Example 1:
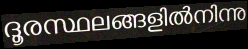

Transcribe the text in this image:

ദൂരസ്ഥലങ്ങളിൽനിന്നു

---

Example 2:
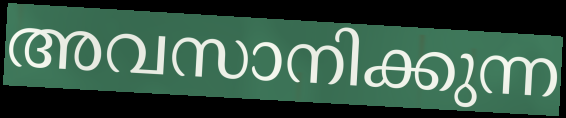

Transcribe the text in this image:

അവസാനിക്കുന്ന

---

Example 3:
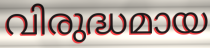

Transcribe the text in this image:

വിരുദ്ധമായ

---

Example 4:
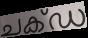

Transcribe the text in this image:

ചക്ഡ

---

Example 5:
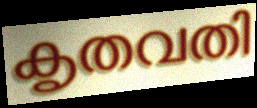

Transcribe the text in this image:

കൃതവതി